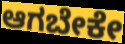
ಆಗಬೇಕೇ